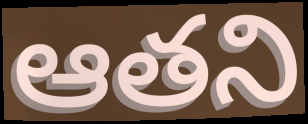
ఆతని